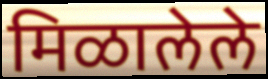
मिळालेले